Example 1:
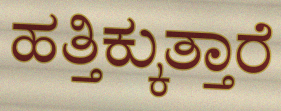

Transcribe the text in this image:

ಹತ್ತಿಕ್ಕುತ್ತಾರೆ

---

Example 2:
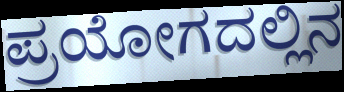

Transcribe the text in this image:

ಪ್ರಯೋಗದಲ್ಲಿನ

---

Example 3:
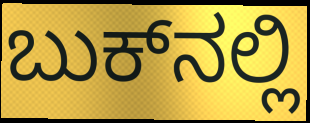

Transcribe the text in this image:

ಬುಕ್‌ನಲ್ಲಿ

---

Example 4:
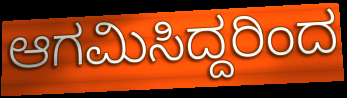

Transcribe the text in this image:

ಆಗಮಿಸಿದ್ದರಿಂದ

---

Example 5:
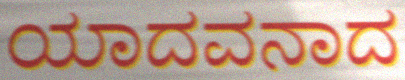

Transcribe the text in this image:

ಯಾದವನಾದ